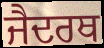
ਜੈਦਰਥ